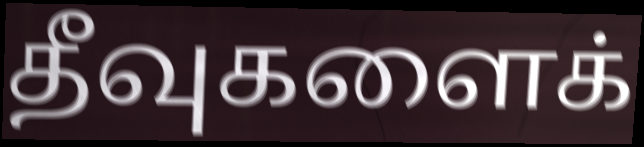
தீவுகளைக்